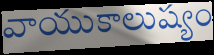
వాయుకాలుష్యం